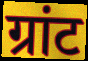
ग्रांट